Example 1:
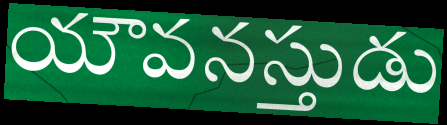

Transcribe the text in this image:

యౌవనస్తుడు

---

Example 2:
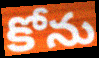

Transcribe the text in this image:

కోను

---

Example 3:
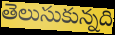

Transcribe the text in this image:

తెలుసుకున్నది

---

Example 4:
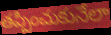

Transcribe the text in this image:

తప్పించుకునేలా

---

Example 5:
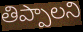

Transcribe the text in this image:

తిప్పాలని